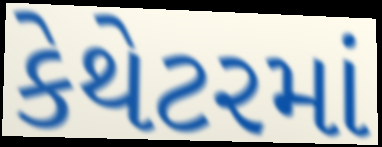
કેથેટરમાં